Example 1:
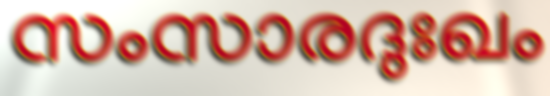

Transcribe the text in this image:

സംസാരദുഃഖം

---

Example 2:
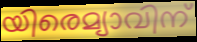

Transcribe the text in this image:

യിരെമ്യാവിന്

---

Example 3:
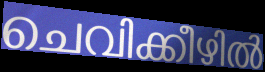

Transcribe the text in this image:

ചെവിക്കീഴിൽ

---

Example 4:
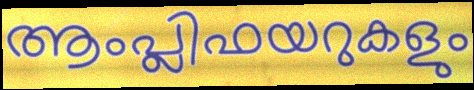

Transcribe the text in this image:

ആംപ്ലിഫയറുകളും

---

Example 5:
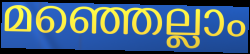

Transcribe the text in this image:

മഞ്ഞെല്ലാം